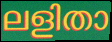
ലളിതാ